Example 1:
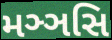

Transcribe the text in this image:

મઞ્ઞસિ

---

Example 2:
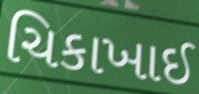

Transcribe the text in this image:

ચિકાખાઈ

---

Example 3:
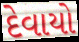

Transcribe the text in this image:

દેવાયો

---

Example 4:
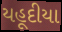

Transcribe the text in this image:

યહૂદીયા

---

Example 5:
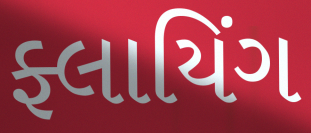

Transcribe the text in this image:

ફ્લાયિંગ